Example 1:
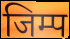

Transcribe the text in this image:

जिम्प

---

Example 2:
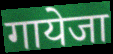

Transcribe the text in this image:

गायेजा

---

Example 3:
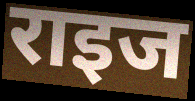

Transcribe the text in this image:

राइज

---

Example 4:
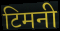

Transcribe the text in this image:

टिमनी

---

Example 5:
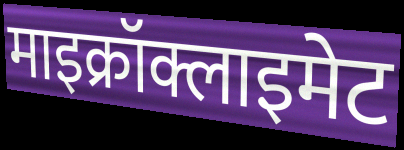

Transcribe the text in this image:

माइक्रॉक्लाइमेट